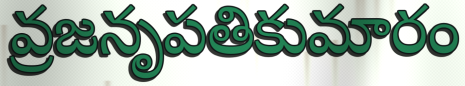
వ్రజనృపతికుమారం